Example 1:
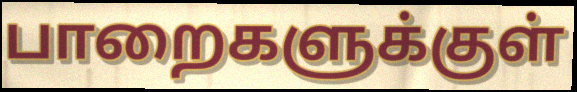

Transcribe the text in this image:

பாறைகளுக்குள்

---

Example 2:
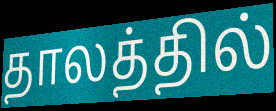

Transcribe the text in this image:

தாலத்தில்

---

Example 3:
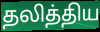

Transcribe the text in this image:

தலித்திய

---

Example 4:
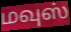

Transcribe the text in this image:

மவுஸ்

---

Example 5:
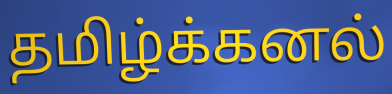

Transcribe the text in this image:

தமிழ்க்கனல்